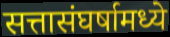
सत्तासंघर्षामध्ये